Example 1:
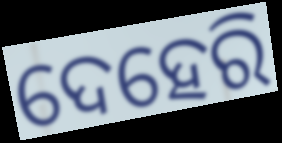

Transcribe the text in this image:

ଦେହେରି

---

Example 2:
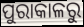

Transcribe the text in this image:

ପୁରାକାଳରୁ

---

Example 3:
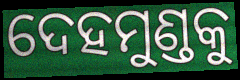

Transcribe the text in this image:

ଦେହମୁଣ୍ଡକୁ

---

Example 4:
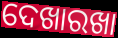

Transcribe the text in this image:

ଦେଖାରଖା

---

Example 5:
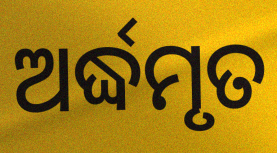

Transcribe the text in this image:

ଅର୍ଦ୍ଧମୃତ